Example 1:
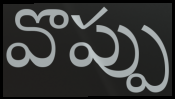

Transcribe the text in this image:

వొప్పు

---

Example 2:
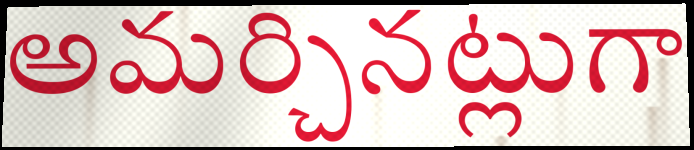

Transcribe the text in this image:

అమర్చినట్లుగా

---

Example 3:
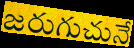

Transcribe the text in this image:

జరుగుచునే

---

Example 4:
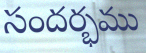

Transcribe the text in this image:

సందర్భము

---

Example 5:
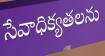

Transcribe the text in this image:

సేవాధిక్యతలను